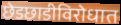
छेडछाडीविरोधात